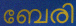
ബേരി